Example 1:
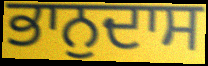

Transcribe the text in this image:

ਭਾਨੁਦਾਸ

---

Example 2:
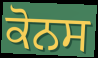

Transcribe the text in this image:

ਕੋਨਸ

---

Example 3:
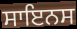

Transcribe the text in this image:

ਸਾਇਨਸ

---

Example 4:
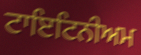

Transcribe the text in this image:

ਟਾਇਟਿਨੀਅਮ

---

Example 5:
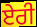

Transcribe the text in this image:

ਏਰੀ